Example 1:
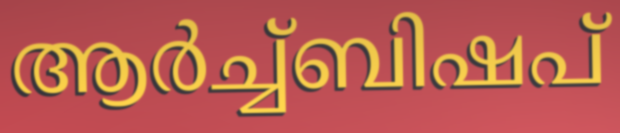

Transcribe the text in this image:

ആർച്ച്ബിഷപ്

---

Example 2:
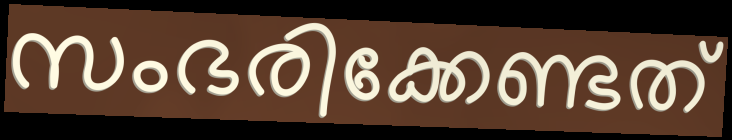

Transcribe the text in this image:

സംഭരിക്കേണ്ടത്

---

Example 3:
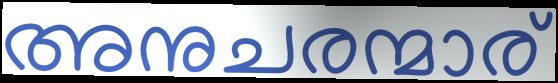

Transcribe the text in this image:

അനുചരന്മാര്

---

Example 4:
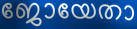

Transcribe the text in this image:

ജോയേതാ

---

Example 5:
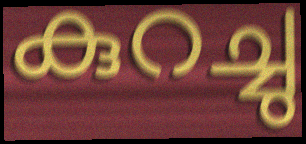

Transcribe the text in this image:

കുറച്ചു